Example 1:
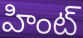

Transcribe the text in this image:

హింట్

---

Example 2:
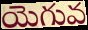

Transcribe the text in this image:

యెగువ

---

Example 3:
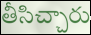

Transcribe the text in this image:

తీసిచ్చారు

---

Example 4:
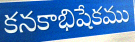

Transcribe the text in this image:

కనకాభిషేకము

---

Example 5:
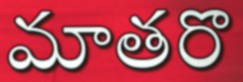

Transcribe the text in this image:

మాతరొ